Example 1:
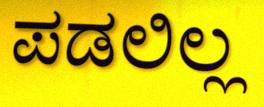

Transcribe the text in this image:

ಪಡಲಿಲ್ಲ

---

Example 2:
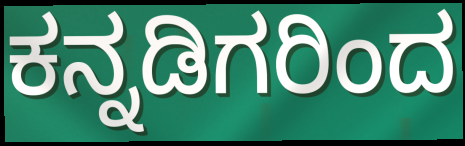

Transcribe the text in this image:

ಕನ್ನಡಿಗರಿಂದ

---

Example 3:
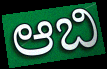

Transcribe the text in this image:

ಆಬಿ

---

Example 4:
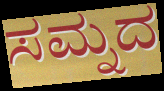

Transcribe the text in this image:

ಸಮ್ನದ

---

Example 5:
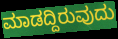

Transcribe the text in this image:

ಮಾಡದ್ದಿರುವುದು